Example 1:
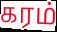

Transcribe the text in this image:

கரம்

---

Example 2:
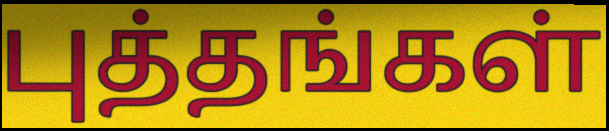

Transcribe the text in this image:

புத்தங்கள்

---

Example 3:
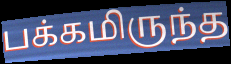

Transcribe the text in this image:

பக்கமிருந்த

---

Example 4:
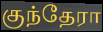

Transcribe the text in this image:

குந்தேரா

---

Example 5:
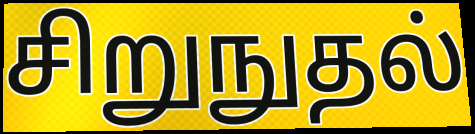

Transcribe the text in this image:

சிறுநுதல்